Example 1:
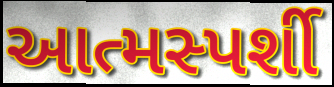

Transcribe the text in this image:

આત્મસ્પર્શી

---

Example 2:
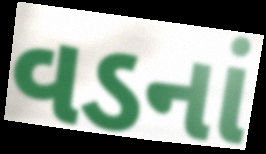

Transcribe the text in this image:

વડનાં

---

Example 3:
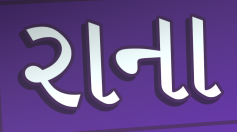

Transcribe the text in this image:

રાના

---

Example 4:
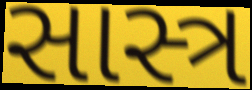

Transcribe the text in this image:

સાસ્ત્ર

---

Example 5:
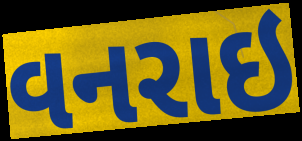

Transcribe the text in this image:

વનરાઇ